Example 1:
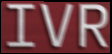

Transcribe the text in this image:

IVR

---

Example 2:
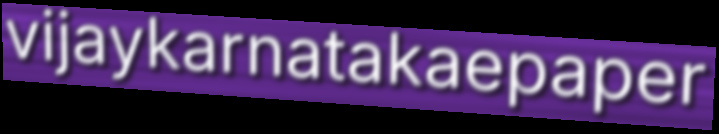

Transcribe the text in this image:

vijaykarnatakaepaper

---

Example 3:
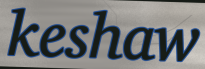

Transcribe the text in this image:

keshaw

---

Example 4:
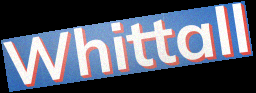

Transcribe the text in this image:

Whittall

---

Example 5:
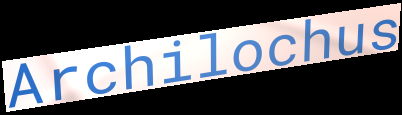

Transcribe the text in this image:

Archilochus